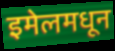
इमेलमधून